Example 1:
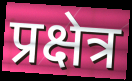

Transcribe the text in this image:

प्रक्षेत्र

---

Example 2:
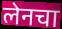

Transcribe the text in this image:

लेनचा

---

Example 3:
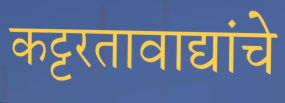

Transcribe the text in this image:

कट्टरतावाद्यांचे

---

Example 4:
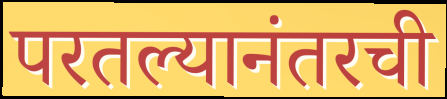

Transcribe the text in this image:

परतल्यानंतरची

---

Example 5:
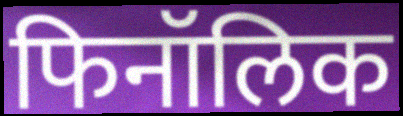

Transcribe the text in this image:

फिनॉलिक